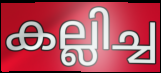
കല്ലിച്ച